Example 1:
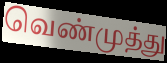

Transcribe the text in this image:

வெண்முத்து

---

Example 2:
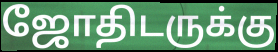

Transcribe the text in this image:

ஜோதிடருக்கு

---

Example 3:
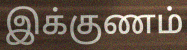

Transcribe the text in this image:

இக்குணம்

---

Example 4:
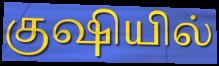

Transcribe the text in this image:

குஷியில்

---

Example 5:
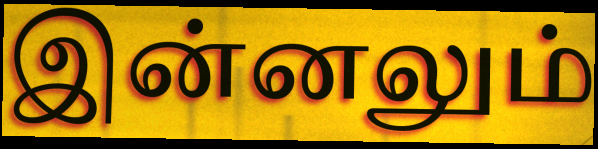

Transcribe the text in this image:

இன்னலும்